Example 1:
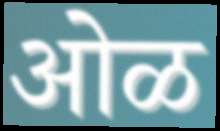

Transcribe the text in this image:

ओळ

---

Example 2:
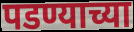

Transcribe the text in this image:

पडण्याच्या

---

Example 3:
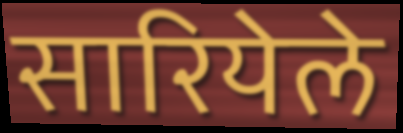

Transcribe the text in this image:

सारियेले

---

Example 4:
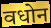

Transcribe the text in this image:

वधोन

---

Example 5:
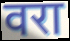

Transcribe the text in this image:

वरा